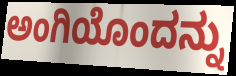
ಅಂಗಿಯೊಂದನ್ನು